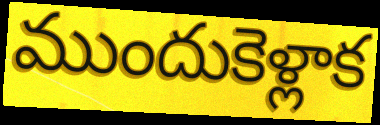
ముందుకెళ్లాక